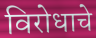
विरोधाचे